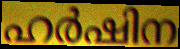
ഹർഷിന